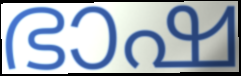
ഭാഷ